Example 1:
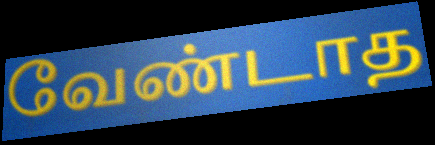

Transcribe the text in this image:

வேண்டாத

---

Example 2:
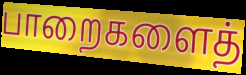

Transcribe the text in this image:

பாறைகளைத்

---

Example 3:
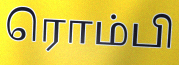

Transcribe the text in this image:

ரொம்பி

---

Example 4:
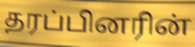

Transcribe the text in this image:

தரப்பினரின்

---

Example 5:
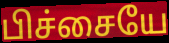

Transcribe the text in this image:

பிச்சையே